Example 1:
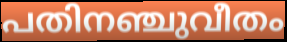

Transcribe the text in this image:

പതിനഞ്ചുവീതം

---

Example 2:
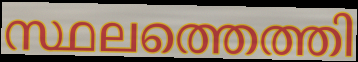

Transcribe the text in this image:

സ്ഥലത്തെത്തി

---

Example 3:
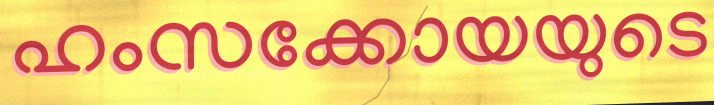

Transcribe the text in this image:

ഹംസക്കോയയുടെ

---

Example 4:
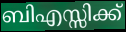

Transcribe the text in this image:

ബിഎസ്സിക്ക്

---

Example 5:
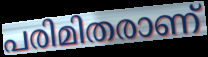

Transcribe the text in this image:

പരിമിതരാണ്